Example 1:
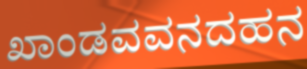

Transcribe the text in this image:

ಖಾಂಡವವನದಹನ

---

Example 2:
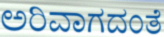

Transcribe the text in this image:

ಅರಿವಾಗದಂತೆ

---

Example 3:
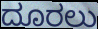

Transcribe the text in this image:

ದೂರಲು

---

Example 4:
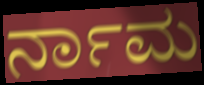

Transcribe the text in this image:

ರ್ನಾಮ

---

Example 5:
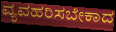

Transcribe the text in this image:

ವ್ಯವಹರಿಸಬೇಕಾದ